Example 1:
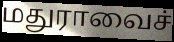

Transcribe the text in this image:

மதுராவைச்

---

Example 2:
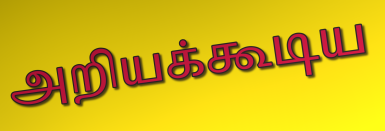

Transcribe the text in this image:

அறியக்கூடிய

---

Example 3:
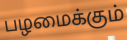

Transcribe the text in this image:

பழமைக்கும்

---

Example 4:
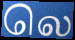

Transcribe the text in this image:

லெ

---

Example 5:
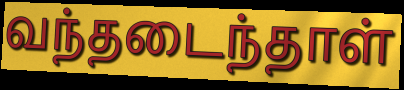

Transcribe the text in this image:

வந்தடைந்தாள்